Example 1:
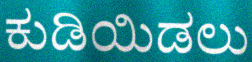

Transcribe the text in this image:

ಕುಡಿಯಿಡಲು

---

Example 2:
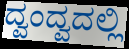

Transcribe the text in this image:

ದ್ವಂದ್ವದಲ್ಲಿ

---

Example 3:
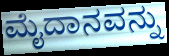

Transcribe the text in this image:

ಮೈದಾನವನ್ನು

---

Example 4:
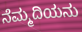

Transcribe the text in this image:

ನೆಮ್ಮದಿಯನು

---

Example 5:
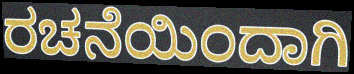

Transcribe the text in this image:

ರಚನೆಯಿಂದಾಗಿ